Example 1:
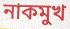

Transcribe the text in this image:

নাকমুখ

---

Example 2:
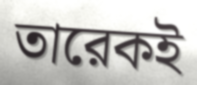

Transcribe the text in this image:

তারেকই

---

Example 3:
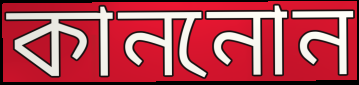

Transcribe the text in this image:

কাননোন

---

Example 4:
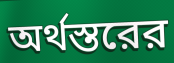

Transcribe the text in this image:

অর্থস্তরের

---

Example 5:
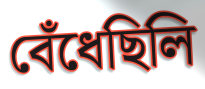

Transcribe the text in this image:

বেঁধেছিলি